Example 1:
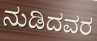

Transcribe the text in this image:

ನುಡಿದವರ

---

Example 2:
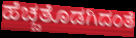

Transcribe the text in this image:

ಹೆಚ್ಚತೊಡಗಿದಂತೆ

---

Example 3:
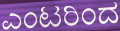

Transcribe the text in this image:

ಎಂಟರಿಂದ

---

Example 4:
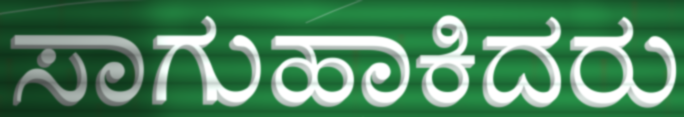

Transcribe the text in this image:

ಸಾಗುಹಾಕಿದರು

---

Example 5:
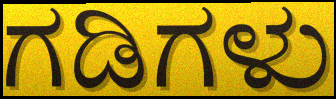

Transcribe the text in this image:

ಗಡಿಗಳು